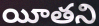
యీతని